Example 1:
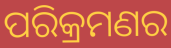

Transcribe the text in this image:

ପରିକ୍ରମଣର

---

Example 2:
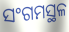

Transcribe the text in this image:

ସଂଗମସ୍ଥଳ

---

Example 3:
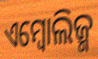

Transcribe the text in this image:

ଏମ୍ବୋଲିଜ୍ମ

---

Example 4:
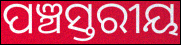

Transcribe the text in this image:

ପଞ୍ଚସ୍ତରୀୟ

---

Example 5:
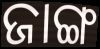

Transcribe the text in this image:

ଜାଙ୍ଗ